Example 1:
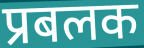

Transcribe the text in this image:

प्रबलक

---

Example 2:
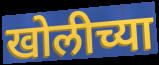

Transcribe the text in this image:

खोलीच्या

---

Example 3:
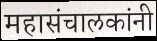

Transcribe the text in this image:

महासंचालकांनी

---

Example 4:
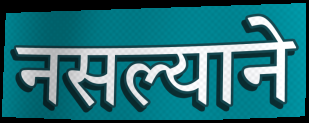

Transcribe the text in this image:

नसल्‍याने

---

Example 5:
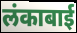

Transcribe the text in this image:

लंकाबाई